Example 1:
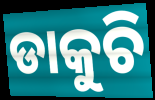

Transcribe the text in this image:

ଡାକୁଚି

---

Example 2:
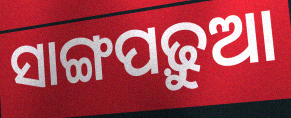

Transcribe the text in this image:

ସାଙ୍ଗପଢ଼ୁଆ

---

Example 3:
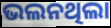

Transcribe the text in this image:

ଭଲନଥିଲା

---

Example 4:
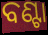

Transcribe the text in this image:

ବଣ୍ଟା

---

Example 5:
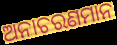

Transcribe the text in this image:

ଅନାଚରଣମାନ